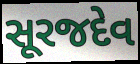
સૂરજદેવ